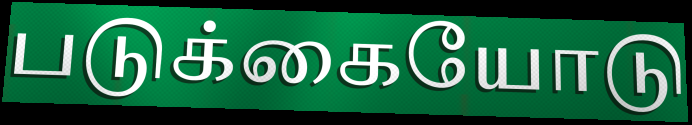
படுக்கையோடு